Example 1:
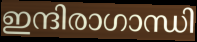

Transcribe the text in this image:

ഇന്ദിരാഗാന്ധി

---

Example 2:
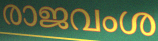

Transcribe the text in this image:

രാജവംശ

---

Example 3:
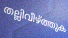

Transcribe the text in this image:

തല്ലിവീഴ്ത്തുക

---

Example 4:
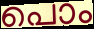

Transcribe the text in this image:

പൊം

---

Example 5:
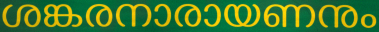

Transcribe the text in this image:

ശങ്കരനാരായണനും